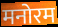
मनोरम